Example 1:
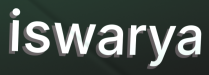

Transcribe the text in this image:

iswarya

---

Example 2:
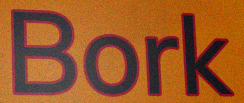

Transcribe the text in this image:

Bork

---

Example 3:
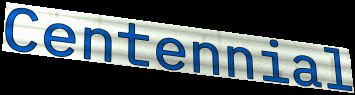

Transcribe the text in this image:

Centennial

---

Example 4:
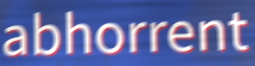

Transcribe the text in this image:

abhorrent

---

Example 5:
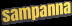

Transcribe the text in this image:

sampanna